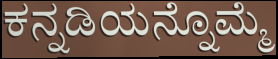
ಕನ್ನಡಿಯನ್ನೊಮ್ಮೆ